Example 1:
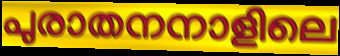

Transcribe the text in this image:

പുരാതനനാളിലെ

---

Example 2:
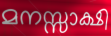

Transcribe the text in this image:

മനസ്സാക്ഷി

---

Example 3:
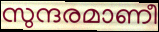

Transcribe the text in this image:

സുന്ദരമാണീ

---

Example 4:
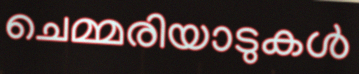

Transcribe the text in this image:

ചെമ്മരിയാടുകൾ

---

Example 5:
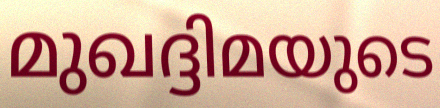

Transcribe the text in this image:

മുഖദ്ദിമയുടെ